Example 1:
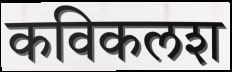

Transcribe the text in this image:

कविकलश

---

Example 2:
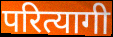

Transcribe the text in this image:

परित्यागी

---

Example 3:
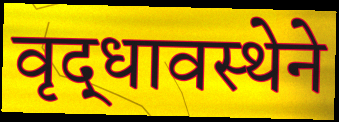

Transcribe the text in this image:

वृद्धावस्थेने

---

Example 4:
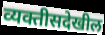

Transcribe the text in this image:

व्यक्तीसदेखील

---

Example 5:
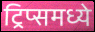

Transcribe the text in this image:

ट्रिप्समध्ये